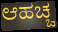
ಆಹಚ್ಚ